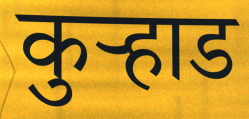
कुऱ्हाड